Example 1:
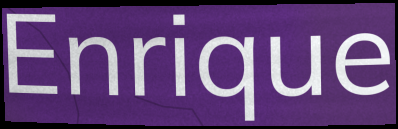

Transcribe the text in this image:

Enrique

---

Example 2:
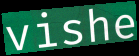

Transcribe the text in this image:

vishe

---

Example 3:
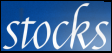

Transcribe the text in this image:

stocks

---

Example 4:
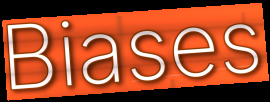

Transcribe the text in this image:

Biases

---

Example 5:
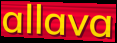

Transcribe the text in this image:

allava